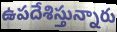
ఉపదేశిస్తున్నారు